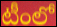
టీంలో